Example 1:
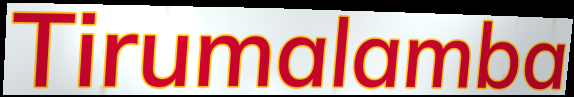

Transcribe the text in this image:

Tirumalamba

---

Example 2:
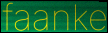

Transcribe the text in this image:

faanke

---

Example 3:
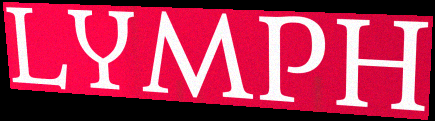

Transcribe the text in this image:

LYMPH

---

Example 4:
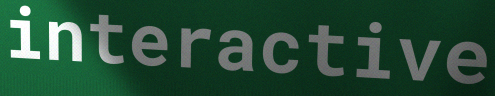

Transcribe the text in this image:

interactive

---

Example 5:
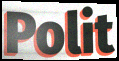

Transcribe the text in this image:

Polit